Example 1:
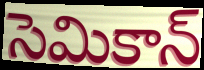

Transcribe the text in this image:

సెమికాన్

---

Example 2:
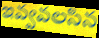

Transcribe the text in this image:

ఇవ్వవలసిన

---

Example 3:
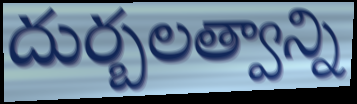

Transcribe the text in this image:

దుర్బలత్వాన్ని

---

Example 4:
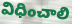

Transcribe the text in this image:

విధించాలి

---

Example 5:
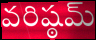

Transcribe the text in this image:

వరిష్ఠమ్